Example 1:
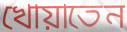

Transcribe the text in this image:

খোয়াতেন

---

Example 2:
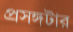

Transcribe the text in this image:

প্রসঙ্গটার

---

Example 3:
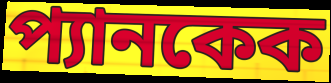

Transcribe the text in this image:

প্যানকেক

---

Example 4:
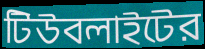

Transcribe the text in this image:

টিউবলাইটের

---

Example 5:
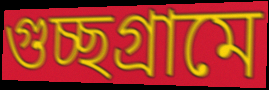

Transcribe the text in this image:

গুচ্ছগ্রামে